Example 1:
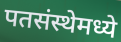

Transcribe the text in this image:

पतसंस्थेमध्ये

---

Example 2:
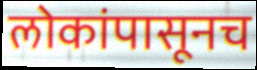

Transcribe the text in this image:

लोकांपासूनच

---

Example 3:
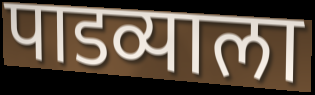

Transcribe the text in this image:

पाडव्याला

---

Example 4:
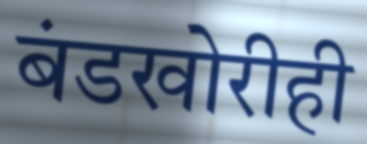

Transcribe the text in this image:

बंडखोरीही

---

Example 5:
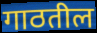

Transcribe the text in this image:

गाठतील